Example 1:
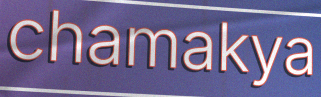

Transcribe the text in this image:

chamakya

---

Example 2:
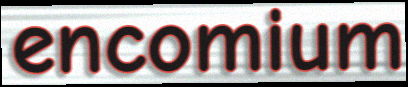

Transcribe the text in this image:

encomium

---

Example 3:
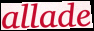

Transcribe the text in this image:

allade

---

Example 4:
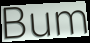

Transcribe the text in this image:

Bum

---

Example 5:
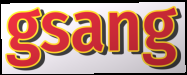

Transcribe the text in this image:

gsang